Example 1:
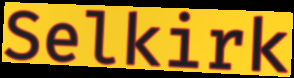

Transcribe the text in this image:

Selkirk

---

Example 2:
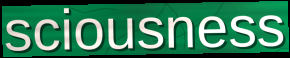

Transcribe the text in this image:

sciousness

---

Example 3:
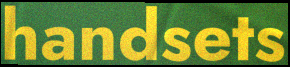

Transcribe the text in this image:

handsets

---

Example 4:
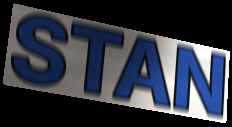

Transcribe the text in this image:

STAN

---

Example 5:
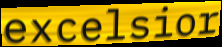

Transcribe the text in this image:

excelsior